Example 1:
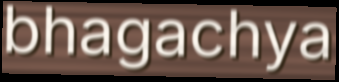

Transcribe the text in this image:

bhagachya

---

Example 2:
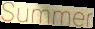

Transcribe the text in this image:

Summer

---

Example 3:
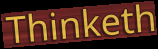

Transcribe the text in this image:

Thinketh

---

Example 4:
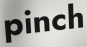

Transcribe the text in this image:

pinch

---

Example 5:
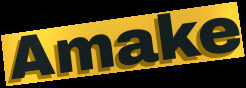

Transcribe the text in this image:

Amake